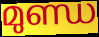
മുണ്ഡ